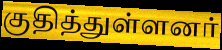
குதித்துள்ளனர்